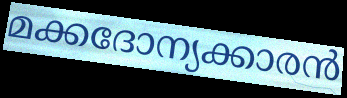
മക്കദോന്യക്കാരൻ